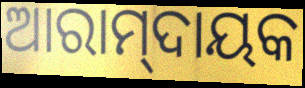
ଆରାମ୍‌ଦାୟକ